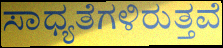
ಸಾಧ್ಯತೆಗಳಿರುತ್ತವೆ